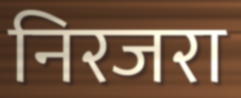
निरजरा